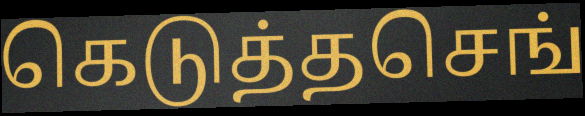
கெடுத்தசெங்